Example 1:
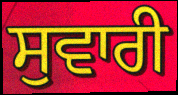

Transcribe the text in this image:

ਸੁਵਾਰੀ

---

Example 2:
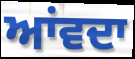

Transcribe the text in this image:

ਆਂਵਦਾ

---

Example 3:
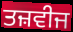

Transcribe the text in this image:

ਤਜ਼ਵੀਜ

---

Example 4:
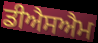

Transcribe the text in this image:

ਡੀਐਸਐਮ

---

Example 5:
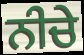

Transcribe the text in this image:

ਨੀਚੇ